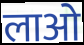
लाओ